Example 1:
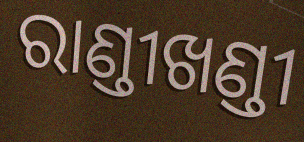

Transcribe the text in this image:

ରାଣ୍ଡୀଖଣ୍ଡୀ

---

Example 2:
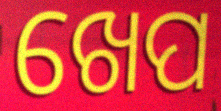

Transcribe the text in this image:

ଖେପ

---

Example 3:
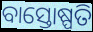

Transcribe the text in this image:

ବାସ୍ତୋଷ୍ପତି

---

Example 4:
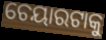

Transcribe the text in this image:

ଚେୟାରଟାକୁ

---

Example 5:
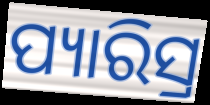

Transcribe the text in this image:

ପ୍ୟାରିସ୍ର